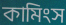
কামিংস